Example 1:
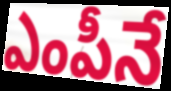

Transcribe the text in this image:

ఎంపీనే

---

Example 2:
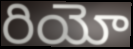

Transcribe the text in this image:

రియో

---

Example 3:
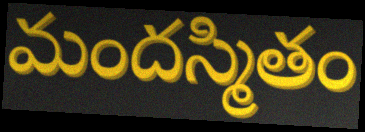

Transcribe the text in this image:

మందస్మితం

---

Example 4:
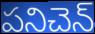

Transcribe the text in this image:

పనిచెన్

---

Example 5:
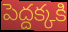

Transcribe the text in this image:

పెద్దక్కకి